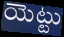
యెట్టు